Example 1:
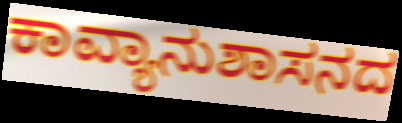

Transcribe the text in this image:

ಕಾವ್ಯಾನುಶಾಸನದ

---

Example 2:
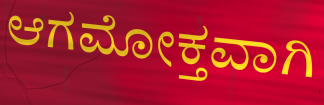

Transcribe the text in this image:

ಆಗಮೋಕ್ತವಾಗಿ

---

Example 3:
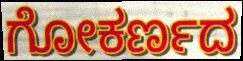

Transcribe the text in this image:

ಗೋಕರ್ಣದ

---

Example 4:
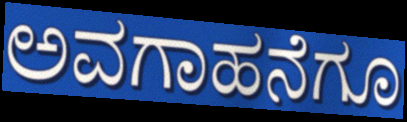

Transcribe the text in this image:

ಅವಗಾಹನೆಗೂ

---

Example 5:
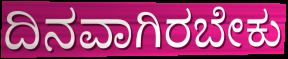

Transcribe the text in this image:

ದಿನವಾಗಿರಬೇಕು